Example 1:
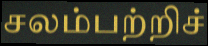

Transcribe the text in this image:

சலம்பற்றிச்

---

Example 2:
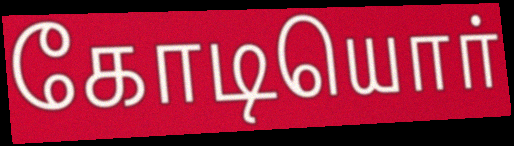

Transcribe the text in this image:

கோடியொர்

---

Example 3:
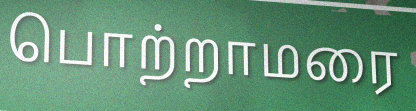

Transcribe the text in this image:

பொற்றாமரை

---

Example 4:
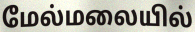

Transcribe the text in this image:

மேல்மலையில்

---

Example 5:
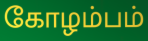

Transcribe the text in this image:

கோழம்பம்